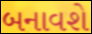
બનાવશે